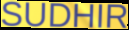
SUDHIR